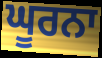
ਘੂਰਨਾ